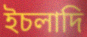
ইচলাদি